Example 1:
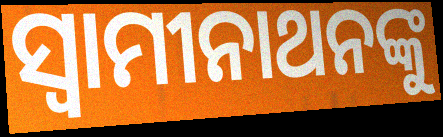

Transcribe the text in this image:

ସ୍ୱାମୀନାଥନଙ୍କୁ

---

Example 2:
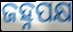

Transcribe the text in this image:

ଜହ୍ନପକ୍ଷ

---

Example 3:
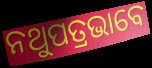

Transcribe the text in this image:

ନଥୁପତ୍ରଭାବେ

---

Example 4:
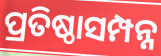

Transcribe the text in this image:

ପ୍ରତିଷ୍ଠାସମ୍ପନ୍ନ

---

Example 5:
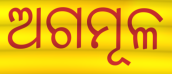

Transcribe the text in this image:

ଅଗମୂଳ